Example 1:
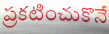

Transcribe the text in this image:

ప్రకటించుకొనే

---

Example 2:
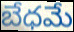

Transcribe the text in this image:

బేధమే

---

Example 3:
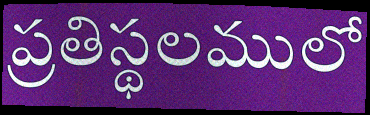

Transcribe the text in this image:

ప్రతిస్థలములో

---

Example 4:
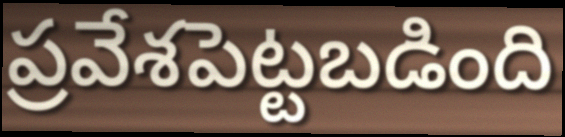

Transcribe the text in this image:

ప్రవేశపెట్టబడింది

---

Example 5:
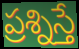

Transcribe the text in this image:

ప్రశ్నిస్తే